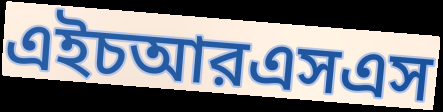
এইচআরএসএস